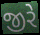
જીરે